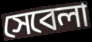
সেবেলা